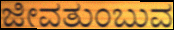
ಜೀವತುಂಬುವ